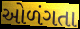
ઓળંગતા